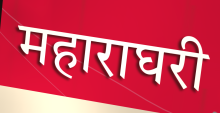
महाराघरी